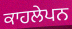
ਕਾਹਲੇਪਨ